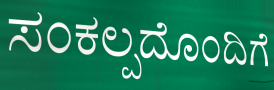
ಸಂಕಲ್ಪದೊಂದಿಗೆ